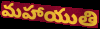
మహాయుతి